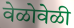
वेळोवेळी